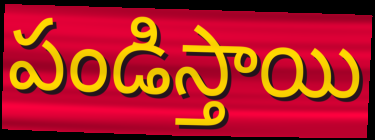
పండిస్తాయి